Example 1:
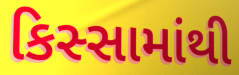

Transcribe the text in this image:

કિસ્સામાંથી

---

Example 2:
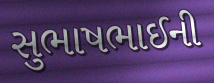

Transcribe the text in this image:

સુભાષભાઈની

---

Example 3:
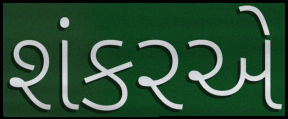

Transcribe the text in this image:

શંકરએ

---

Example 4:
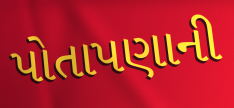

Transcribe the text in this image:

પોતાપણાની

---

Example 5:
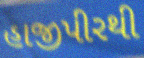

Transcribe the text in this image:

હાજીપીરથી